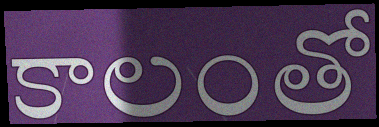
కాలంతో